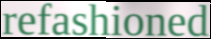
refashioned